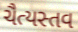
ચૈત્યસ્તવ